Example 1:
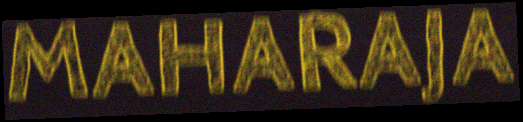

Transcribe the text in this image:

MAHARAJA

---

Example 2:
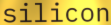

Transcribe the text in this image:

silicon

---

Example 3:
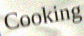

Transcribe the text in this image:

Cooking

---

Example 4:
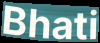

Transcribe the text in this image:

Bhati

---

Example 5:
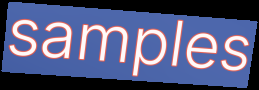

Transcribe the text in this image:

samples